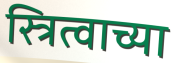
स्त्रित्वाच्या